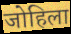
जोहिला